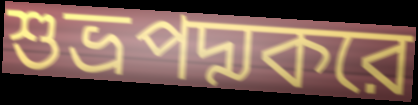
শুভ্রপদ্মকরে